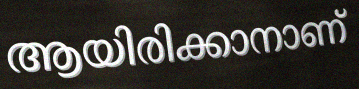
ആയിരിക്കാനാണ്